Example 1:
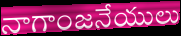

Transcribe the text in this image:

నాగాంజనేయులు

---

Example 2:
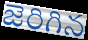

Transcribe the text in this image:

జెరిగిన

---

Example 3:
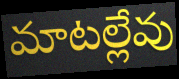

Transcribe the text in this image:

మాటల్లేవు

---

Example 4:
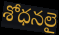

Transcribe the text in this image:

శోధనలై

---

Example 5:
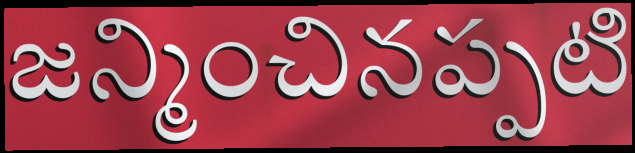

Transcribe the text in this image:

జన్మించినప్పటి